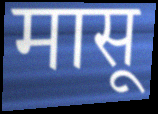
मासू